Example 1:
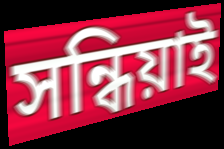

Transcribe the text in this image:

সন্ধিয়াই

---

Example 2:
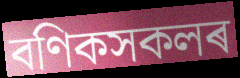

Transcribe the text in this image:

বণিকসকলৰ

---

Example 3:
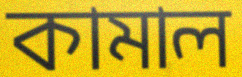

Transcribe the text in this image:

কামাল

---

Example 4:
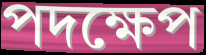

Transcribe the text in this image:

পদক্ষেপ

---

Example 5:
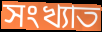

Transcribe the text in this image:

সংখ্যাত